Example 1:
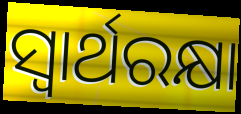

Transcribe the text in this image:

ସ୍ଵାର୍ଥରକ୍ଷା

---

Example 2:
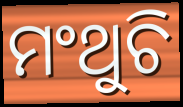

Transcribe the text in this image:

ମଂଥୁଚି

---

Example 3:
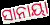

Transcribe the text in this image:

ସାନାୟା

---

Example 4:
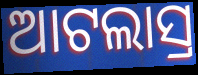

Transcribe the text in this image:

ଆଟଲାସ୍ର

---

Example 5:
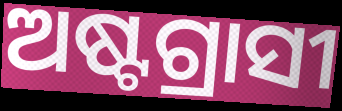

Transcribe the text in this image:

ଅଷ୍ଟଗ୍ରାସୀ